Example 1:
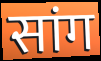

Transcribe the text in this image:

सांग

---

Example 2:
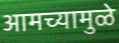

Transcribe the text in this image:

आमच्यामुळे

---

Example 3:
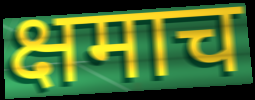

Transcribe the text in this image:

क्षमाच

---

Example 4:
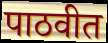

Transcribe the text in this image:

पाठवीत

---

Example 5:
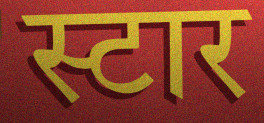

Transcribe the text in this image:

स्टार